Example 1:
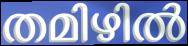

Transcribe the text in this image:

തമിഴിൽ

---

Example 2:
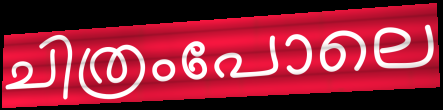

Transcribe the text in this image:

ചിത്രംപോലെ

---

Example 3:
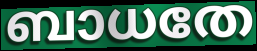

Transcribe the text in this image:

ബാധതേ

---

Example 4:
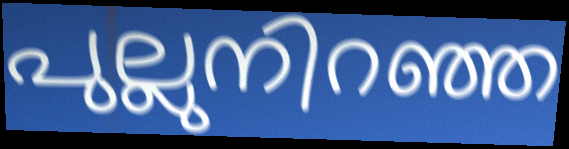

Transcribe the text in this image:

പുല്ലുനിറഞ്ഞ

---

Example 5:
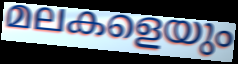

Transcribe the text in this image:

മലകളെയും